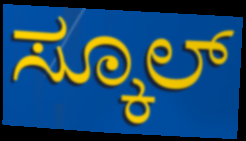
ಸ್ಕೂಲ್